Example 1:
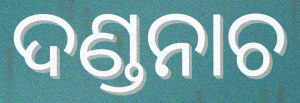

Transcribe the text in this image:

ଦଣ୍ଡନାଚ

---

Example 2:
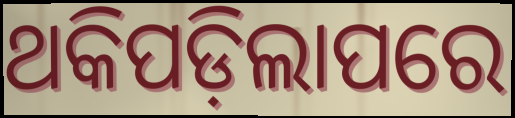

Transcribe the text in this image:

ଥକିପଡ଼ିଲାପରେ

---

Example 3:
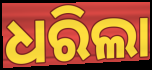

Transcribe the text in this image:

ଧରିଲା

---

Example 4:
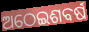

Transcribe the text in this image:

ଅଠେଇଶବର୍ଷ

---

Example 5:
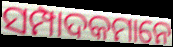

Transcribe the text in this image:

ସମ୍ପାଦକମାନେ